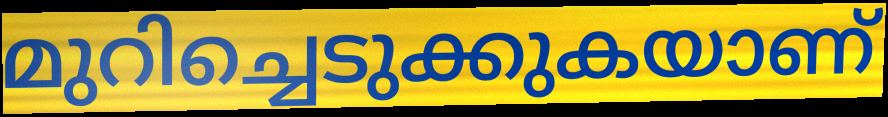
മുറിച്ചെടുക്കുകയാണ്